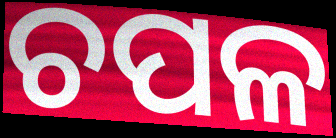
ଚପଳ